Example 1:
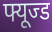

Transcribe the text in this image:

फ्यूज्ड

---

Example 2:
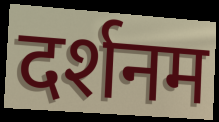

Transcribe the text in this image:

दर्शनम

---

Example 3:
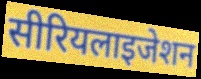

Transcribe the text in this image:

सीरियलाइजेशन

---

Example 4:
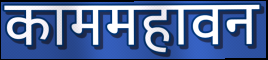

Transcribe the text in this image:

काममहावन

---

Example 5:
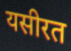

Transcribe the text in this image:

यसीरत